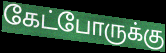
கேட்போருக்கு